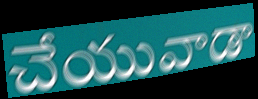
చేయువాడా